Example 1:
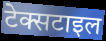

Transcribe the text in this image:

टेक्सटाइल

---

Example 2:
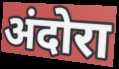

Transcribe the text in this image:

अंदोरा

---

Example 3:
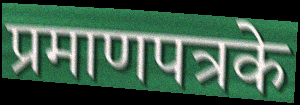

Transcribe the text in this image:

प्रमाणपत्रके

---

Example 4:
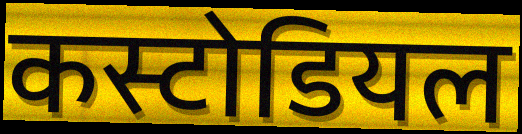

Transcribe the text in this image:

कस्टोडियल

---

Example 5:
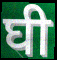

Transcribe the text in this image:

घी